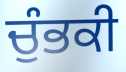
ਚੁੰਭਕੀ